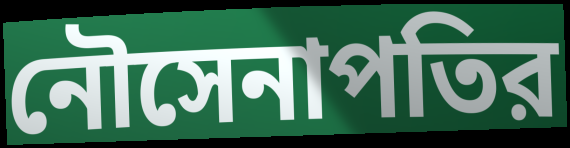
নৌসেনাপতির